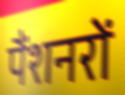
पैंशनरों